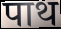
पाथ